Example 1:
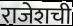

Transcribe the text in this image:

राजेशची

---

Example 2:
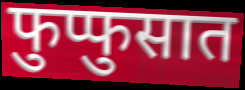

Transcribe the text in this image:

फुप्फुसात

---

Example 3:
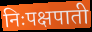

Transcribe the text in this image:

निःपक्षपाती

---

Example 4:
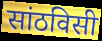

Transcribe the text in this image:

सांठविसी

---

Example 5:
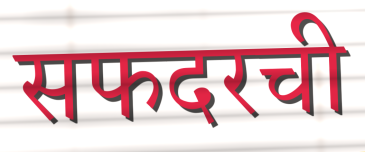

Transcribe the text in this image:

सफदरची